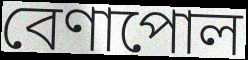
বেণাপোল